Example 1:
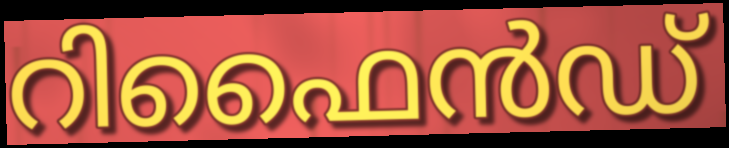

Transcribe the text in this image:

റിഫൈൻഡ്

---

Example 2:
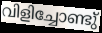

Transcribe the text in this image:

വിളിച്ചോണ്ടു്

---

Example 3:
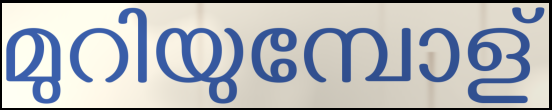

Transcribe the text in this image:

മുറിയുമ്പോള്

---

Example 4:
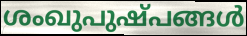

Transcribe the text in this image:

ശംഖുപുഷ്പങ്ങൾ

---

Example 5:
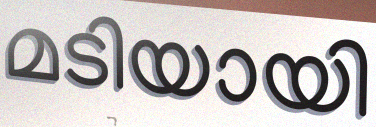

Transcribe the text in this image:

മടിയായി